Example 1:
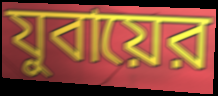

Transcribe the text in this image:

যুবায়ের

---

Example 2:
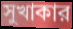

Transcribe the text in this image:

সুখাকার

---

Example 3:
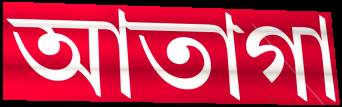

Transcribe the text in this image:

আতাগা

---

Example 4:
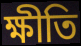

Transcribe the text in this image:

ক্ষীতি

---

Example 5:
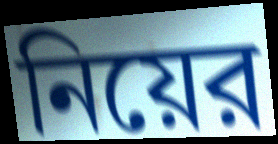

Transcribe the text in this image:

নিয়ের